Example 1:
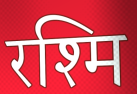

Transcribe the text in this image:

रश्मि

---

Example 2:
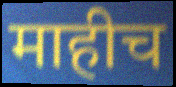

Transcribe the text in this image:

माहीच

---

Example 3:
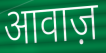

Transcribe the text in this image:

आवाज़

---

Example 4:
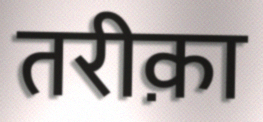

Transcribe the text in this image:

तरीक़ा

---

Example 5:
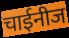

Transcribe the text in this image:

चाईनीज